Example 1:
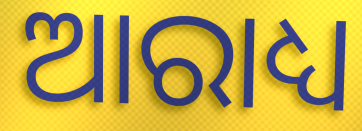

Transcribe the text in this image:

ଆରାଧ୍ୟ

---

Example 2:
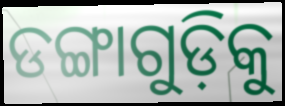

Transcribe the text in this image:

ଡଙ୍ଗାଗୁଡ଼ିକୁ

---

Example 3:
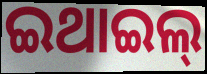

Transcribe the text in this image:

ଇଥାଇଲ୍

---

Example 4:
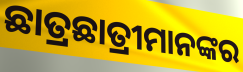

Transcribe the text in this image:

ଛାତ୍ରଛାତ୍ରୀମାନଙ୍କର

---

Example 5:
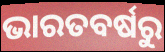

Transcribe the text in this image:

ଭାରତବର୍ଷରୁ